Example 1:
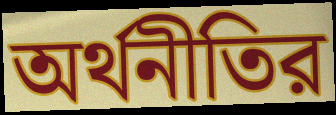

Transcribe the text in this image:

অর্থনীতির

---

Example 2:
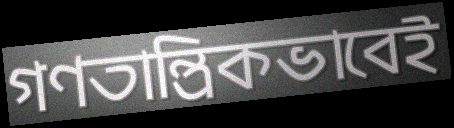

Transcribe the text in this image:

গণতান্ত্রিকভাবেই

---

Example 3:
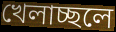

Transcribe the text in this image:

খেলাচ্ছলে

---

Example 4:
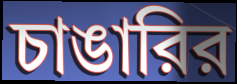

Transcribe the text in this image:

চাঙারির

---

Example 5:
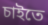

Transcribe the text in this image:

চাইতে